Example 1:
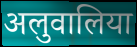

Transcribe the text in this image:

अलुवालिया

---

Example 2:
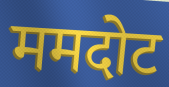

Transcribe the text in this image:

ममदोट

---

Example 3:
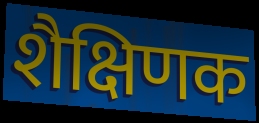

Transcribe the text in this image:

शैक्षिणक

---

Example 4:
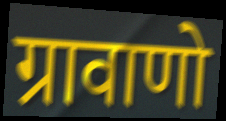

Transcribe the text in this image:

ग्रावाणो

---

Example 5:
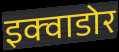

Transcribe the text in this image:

इक्‍वाडोर